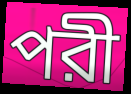
পরী